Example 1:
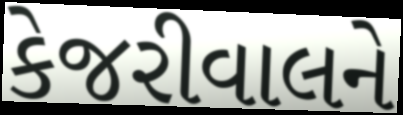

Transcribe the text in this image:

કેજરીવાલને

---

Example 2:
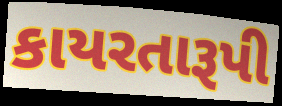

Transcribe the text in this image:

કાયરતારૂપી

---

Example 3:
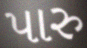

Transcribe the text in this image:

પારુ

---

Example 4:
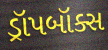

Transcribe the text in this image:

ડ્રૉપબૉક્સ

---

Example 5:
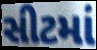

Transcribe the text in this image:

સીટમાં